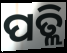
ପତ୍ଲି